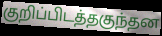
குறிப்பிடத்தகுந்தன